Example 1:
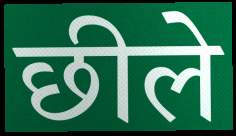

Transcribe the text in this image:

छीले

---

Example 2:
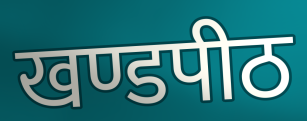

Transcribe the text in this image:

खण्डपीठ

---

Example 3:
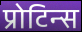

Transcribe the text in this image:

प्रोटिन्स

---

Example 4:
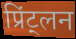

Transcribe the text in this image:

प्रिंट्लन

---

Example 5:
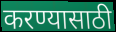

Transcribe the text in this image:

करण्यासाठी